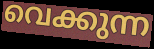
വെക്കുന്ന